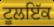
ਟੂਲਇੱਕ